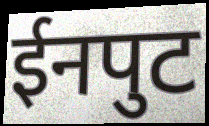
ईनपुट